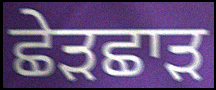
ਛੇੜਛਾੜ